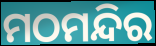
ମଠମନ୍ଦିର